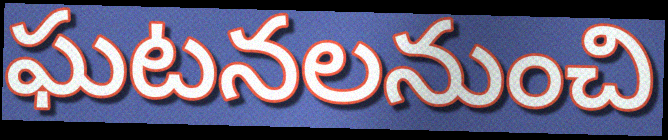
ఘటనలనుంచి